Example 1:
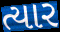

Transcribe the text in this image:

ત્યાર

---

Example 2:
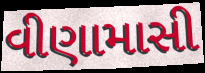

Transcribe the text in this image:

વીણામાસી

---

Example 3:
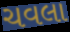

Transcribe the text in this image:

ચવલા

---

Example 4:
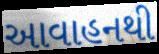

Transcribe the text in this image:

આવાહનથી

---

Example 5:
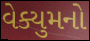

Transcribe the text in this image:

વેક્યુમનો